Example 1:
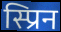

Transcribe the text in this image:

स्प्रिन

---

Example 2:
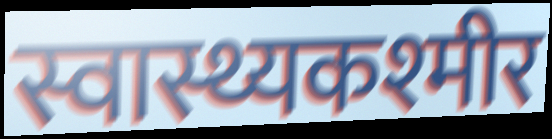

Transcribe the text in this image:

स्वास्थ्यकश्‍मीर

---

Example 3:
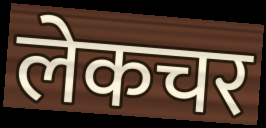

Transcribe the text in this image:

लेकचर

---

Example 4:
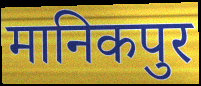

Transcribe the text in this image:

मानिकपुर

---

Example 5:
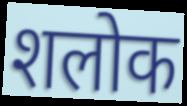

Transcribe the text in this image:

शलोक